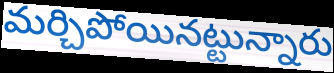
మర్చిపోయినట్టున్నారు